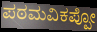
ಪಠಮವಿಕಪ್ಪೋ